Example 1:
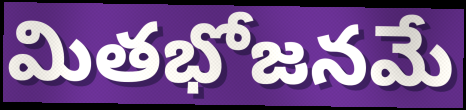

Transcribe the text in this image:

మితభోజనమే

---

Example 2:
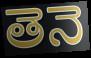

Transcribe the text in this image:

తెనె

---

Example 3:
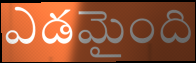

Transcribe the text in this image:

ఎడమైంది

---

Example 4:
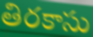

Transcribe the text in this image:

తిరకాసు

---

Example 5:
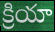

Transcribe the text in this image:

క్రియా